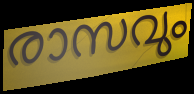
രാസവും